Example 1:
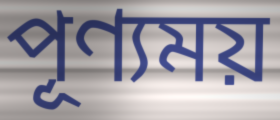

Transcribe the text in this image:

পূণ্যময়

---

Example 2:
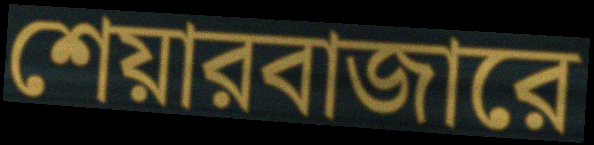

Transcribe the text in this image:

শেয়ারবাজারে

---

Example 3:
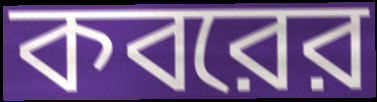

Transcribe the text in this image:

কবরের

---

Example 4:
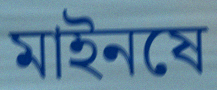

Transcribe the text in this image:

মাইনষে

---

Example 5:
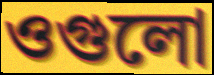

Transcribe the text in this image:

ওগুলো